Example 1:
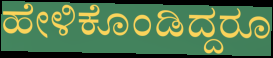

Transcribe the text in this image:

ಹೇಳಿಕೊಂಡಿದ್ದರೂ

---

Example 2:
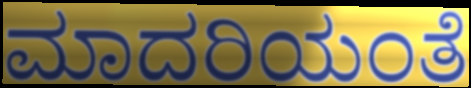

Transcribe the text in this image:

ಮಾದರಿಯಂತೆ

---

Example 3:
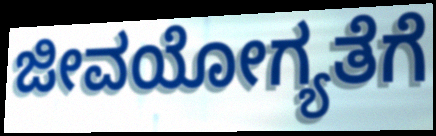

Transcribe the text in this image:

ಜೀವಯೋಗ್ಯತೆಗೆ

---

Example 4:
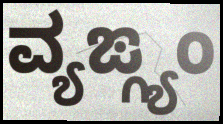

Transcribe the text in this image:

ವ್ಯಙ್ಗ್ಯಂ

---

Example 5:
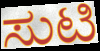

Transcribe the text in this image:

ಸುಟಿ